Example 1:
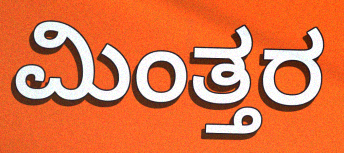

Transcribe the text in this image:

ಮಿಂತ್ತರ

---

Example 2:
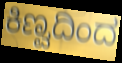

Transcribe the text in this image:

ಕಿಣ್ವದಿಂದ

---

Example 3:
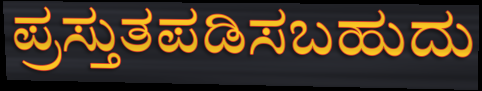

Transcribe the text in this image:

ಪ್ರಸ್ತುತಪಡಿಸಬಹುದು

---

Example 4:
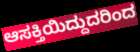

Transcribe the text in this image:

ಆಸಕ್ತಿಯಿದ್ದುದರಿಂದ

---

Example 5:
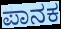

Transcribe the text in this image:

ಪಾನಕ